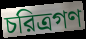
চরিত্রগণ